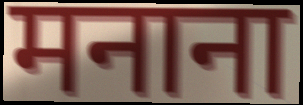
मनाना